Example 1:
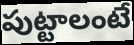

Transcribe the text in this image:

పుట్టాలంటే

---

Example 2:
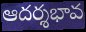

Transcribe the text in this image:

ఆదర్శభావ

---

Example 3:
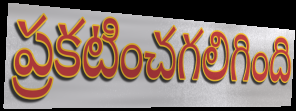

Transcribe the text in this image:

ప్రకటించగలిగింది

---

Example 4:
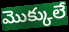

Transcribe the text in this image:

మొక్కులే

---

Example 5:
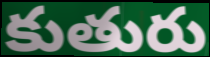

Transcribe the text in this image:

కుతురు